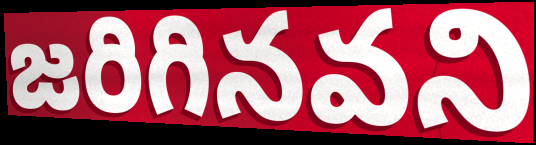
జరిగినవని